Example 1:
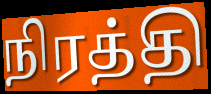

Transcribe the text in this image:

நிரத்தி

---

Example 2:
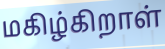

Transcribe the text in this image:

மகிழ்கிறாள்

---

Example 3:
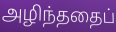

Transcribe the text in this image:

அழிந்ததைப்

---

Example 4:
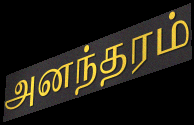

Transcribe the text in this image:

அனந்தரம்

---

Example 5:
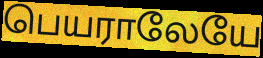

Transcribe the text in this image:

பெயராலேயே